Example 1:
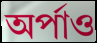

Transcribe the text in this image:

অর্পাও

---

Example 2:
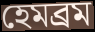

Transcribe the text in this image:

হেমব্রম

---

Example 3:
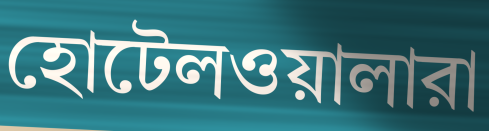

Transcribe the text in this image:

হোটেলওয়ালারা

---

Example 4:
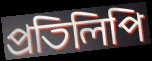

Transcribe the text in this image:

প্রতিলিপি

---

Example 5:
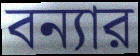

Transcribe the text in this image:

বন্যার